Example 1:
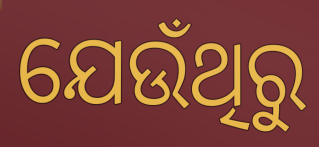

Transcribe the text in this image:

ଯେଉଁଥିରୁ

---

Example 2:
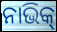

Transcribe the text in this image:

ନାଭିକ୍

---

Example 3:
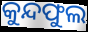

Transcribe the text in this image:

କୁନ୍ଦଫୁଲ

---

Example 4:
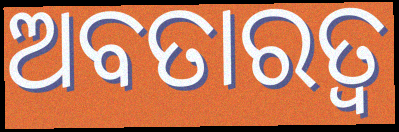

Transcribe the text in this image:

ଅବତାରତ୍ୱ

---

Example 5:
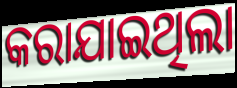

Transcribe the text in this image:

କରାଯାଇଥିଲା